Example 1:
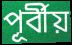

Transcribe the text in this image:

পূর্বীয়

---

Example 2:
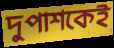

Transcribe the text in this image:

দুপাশকেই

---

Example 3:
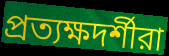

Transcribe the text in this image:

প্রত্যক্ষদর্শীরা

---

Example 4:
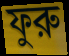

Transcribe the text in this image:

ফুরু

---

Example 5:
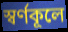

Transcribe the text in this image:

স্বর্ণকূলে